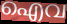
ഐവ